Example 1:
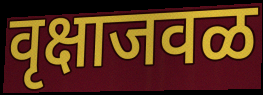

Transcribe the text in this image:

वृक्षाजवळ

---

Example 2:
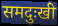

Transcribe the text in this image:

समदुःखी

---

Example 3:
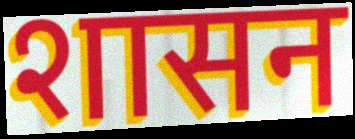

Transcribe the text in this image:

शासन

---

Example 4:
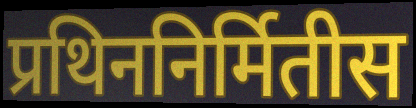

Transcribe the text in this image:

प्रथिननिर्मितीस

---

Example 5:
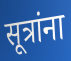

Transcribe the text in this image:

सूत्रांना